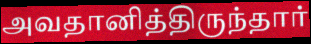
அவதானித்திருந்தார்